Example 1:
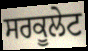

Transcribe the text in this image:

ਸਰਕੂਲੇਟ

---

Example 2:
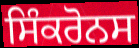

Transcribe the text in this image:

ਸਿੰਕਰੋਨਸ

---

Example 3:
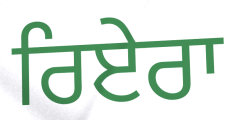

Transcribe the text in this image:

ਰਿਏਰਾ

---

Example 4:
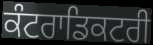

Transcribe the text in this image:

ਕੰਟਰਾਡਿਕਟਰੀ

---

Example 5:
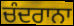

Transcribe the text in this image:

ਚੰਦਰਾਨਾ